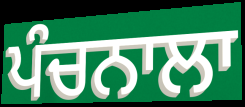
ਪੰਚਨਾਲਾ